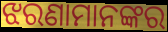
ଝରଣାମାନଙ୍କର